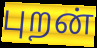
புறன்